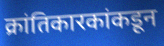
क्रांतिकारकांकडून